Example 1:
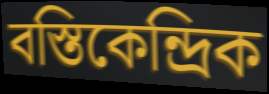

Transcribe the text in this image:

বস্তিকেন্দ্রিক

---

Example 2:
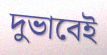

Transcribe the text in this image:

দুভাবেই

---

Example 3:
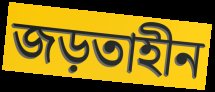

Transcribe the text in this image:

জড়তাহীন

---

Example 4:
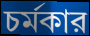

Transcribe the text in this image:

চর্মকার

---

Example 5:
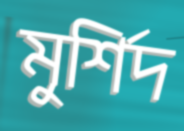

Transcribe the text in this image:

মুর্শিদ